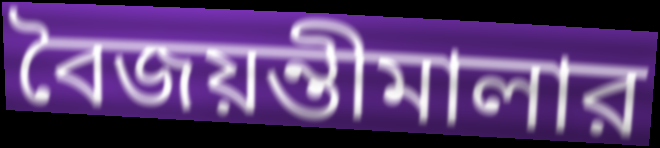
বৈজয়ন্তীমালার